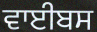
ਵਾਈਬਸ